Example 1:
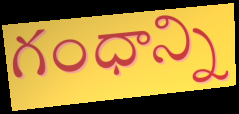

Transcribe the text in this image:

గంధాన్ని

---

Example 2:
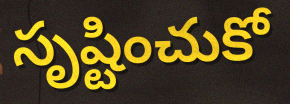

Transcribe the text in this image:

సృష్టించుకో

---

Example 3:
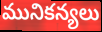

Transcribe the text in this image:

మునికన్యలు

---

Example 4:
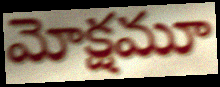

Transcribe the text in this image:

మోక్షమూ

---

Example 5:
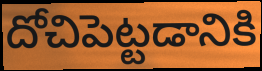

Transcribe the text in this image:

దోచిపెట్టడానికి